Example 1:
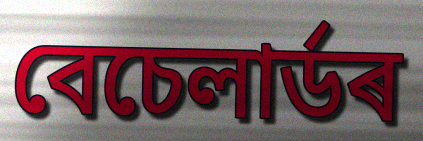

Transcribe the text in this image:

বেচেলাৰ্ডৰ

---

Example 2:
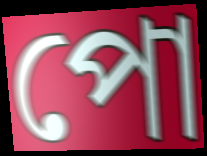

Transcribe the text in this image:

পো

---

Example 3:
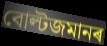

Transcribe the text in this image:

বোল্টজমানৰ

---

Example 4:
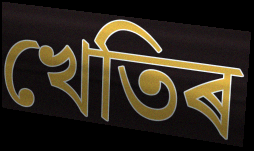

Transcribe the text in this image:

খেতিৰ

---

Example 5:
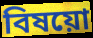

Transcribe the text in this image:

বিষয়ো